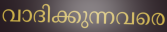
വാദിക്കുന്നവരെ